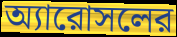
অ্যারোসলের